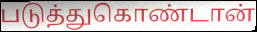
படுத்துகொண்டான்